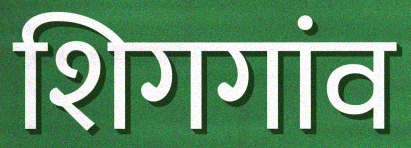
शिगगांव